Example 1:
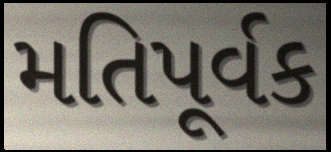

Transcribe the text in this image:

મતિપૂર્વક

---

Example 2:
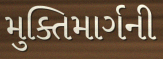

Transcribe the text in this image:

મુક્તિમાર્ગની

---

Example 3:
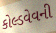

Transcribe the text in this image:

કોલ્ડવેવની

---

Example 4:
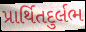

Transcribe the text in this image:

પ્રાર્થિતદુર્લભ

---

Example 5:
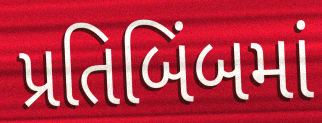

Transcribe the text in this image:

પ્રતિબિંબમાં